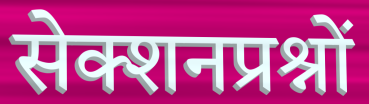
सेक्शनप्रश्नों